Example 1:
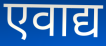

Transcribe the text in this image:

एवाद्य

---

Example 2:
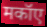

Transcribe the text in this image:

मकॉए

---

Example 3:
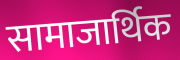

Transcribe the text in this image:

सामाजार्थिक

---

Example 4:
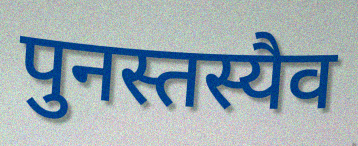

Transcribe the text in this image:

पुनस्तस्यैव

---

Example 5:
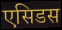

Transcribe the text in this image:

एसिडस